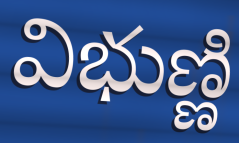
విభుణ్ణి